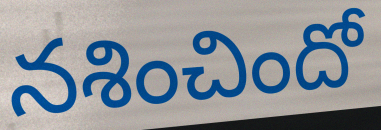
నశించిందో